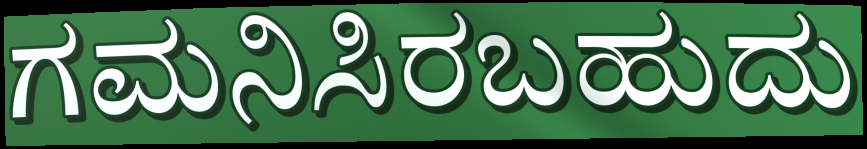
ಗಮನಿಸಿರಬಹುದು